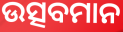
ଉତ୍ସବମାନ